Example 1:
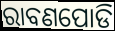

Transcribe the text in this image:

ରାବଣପୋଡି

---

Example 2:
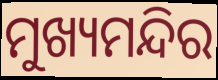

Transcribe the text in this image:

ମୁଖ୍ୟମନ୍ଦିର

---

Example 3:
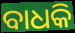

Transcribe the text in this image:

ବାଧକି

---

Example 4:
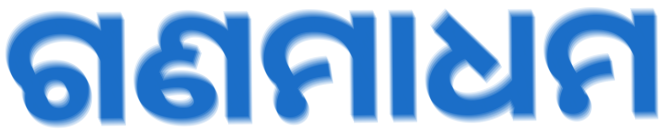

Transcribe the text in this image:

ଗଣମାଧମ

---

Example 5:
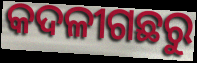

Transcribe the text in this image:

କଦଳୀଗଛରୁ